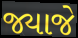
જ્યાજે